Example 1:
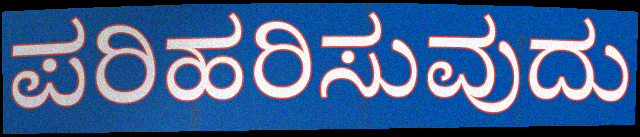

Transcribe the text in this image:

ಪರಿಹರಿಸುವುದು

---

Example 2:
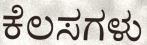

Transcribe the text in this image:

ಕೆಲಸಗಳು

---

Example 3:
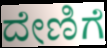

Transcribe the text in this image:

ದೇಣಿಗೆ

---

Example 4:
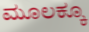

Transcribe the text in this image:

ಮೂಲಕ್ಕೂ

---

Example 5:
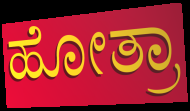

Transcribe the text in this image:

ಹೋತ್ರಾ